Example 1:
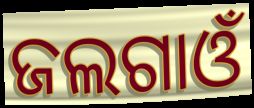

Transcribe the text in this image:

ଜଲଗାଓଁ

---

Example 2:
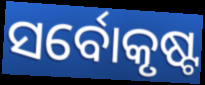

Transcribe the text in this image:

ସର୍ବୋକୃଷ୍ଟ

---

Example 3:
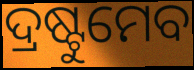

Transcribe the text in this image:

ଦ୍ରଷ୍ଟୁମେବ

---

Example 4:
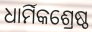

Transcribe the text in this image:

ଧାର୍ମିକଶ୍ରେଷ୍ଠ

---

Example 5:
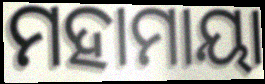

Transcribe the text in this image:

ମହାମାୟା